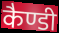
कैण्डी